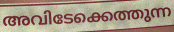
അവിടേക്കെത്തുന്ന